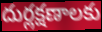
దుర్లక్షణాలకు